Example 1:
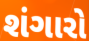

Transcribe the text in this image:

શંગારો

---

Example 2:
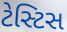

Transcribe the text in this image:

ટેસ્ટિસ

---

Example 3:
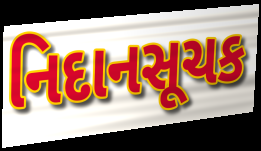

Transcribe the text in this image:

નિદાનસૂચક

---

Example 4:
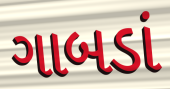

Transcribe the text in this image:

ગાબડાં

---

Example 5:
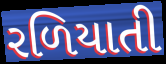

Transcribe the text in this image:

રળિયાતી